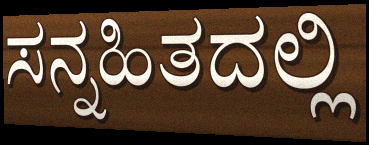
ಸನ್ನಹಿತದಲ್ಲಿ